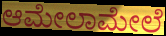
ಆಮೇಲಾಮೇಲೆ